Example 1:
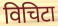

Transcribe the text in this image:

विचिटा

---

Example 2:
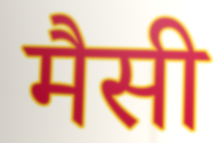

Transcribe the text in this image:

मैसी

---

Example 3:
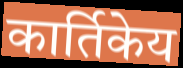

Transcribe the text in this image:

कार्तिकेय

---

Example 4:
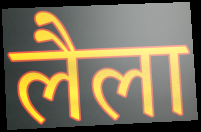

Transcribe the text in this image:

लैला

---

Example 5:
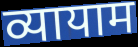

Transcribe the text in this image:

व्यायाम